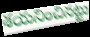
శయనించినట్టు